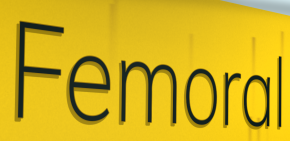
Femoral